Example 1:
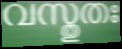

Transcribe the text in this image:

വസ്തുതഃ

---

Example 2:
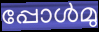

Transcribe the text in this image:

പ്പോൾമു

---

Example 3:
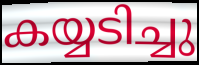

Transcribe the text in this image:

കയ്യടിച്ചു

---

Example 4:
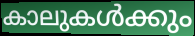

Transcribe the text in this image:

കാലുകൾക്കും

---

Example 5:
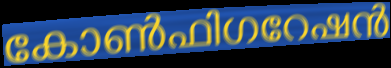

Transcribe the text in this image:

കോൺഫിഗറേഷൻ